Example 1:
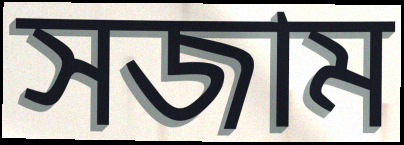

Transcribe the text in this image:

সজাম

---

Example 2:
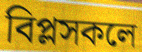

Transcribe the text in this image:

বিপ্লসকলে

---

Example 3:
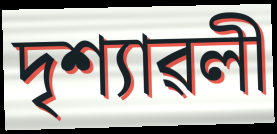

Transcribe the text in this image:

দৃশ্যাৱলী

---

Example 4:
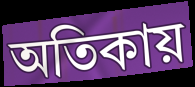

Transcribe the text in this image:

অতিকায়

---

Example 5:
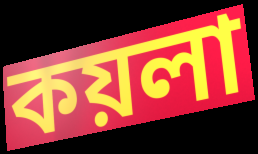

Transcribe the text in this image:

কয়লা